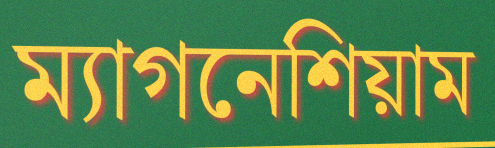
ম্যাগনেশিয়াম